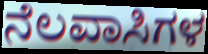
ನೆಲವಾಸಿಗಳ